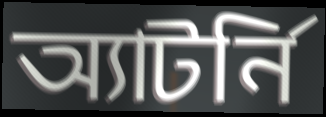
অ্যাটর্নি